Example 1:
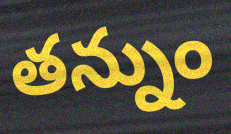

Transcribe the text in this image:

తన్నుం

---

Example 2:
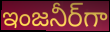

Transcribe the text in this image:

ఇంజనీర్‌గా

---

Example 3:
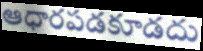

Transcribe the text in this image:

ఆధారపడకూడదు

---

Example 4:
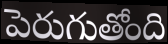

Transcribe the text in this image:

పెరుగుతోంది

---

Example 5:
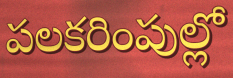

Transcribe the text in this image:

పలకరింపుల్లో